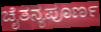
ಚೈತನ್ಯಪೂರ್ಣ